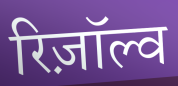
रिज़ॉल्व